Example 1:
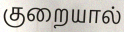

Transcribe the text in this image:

குறையால்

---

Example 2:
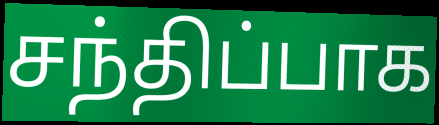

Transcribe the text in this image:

சந்திப்பாக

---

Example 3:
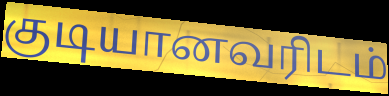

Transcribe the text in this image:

குடியானவரிடம்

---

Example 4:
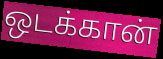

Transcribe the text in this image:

ஒடக்கான்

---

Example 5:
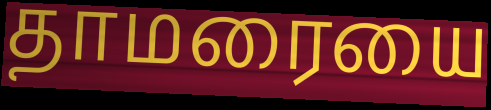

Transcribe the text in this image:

தாமரையை